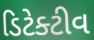
ડિટેક્ટીવ